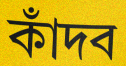
কাঁদব